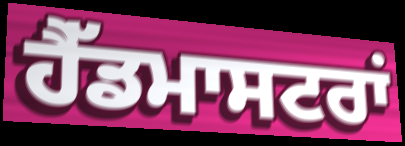
ਹੈੱਡਮਾਸਟਰਾਂ